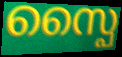
സ്പൈ